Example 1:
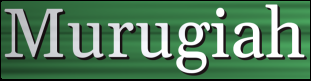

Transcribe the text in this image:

Murugiah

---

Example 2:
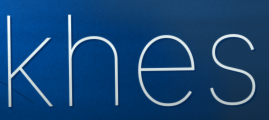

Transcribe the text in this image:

khes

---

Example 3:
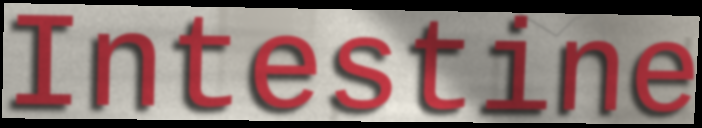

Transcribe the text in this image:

Intestine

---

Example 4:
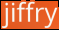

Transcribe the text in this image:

jiffry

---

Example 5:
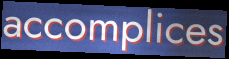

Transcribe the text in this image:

accomplices